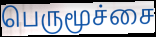
பெருமூச்சை